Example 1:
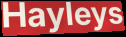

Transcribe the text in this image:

Hayleys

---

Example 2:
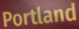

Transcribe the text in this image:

Portland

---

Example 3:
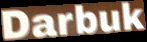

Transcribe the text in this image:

Darbuk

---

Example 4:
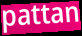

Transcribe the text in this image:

pattan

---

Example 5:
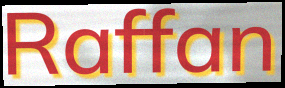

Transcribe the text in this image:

Raffan